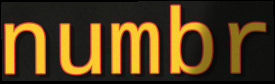
numbr